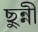
ছুন্নী